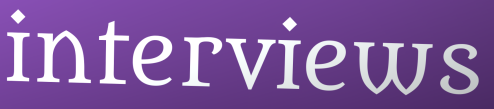
interviews